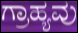
ಗ್ರಾಹ್ಯವು